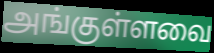
அங்குள்ளவை